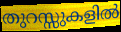
തുറസ്സുകളിൽ